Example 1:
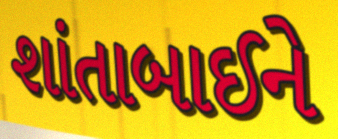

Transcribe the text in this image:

શાંતાબાઈને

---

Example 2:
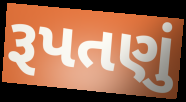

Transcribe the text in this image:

રૂપતણું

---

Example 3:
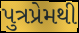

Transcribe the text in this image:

પુત્રપ્રેમથી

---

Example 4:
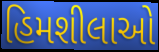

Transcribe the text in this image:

હિમશીલાઓ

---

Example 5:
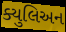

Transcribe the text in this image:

ક્યુલિઅન